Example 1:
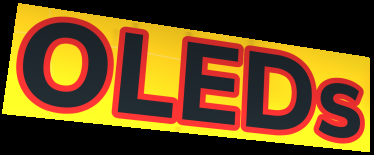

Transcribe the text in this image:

OLEDs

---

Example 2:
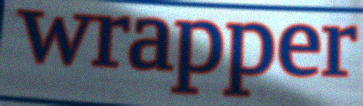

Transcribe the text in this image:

wrapper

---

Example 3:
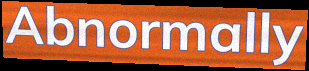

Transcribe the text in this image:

Abnormally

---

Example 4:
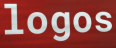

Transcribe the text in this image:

logos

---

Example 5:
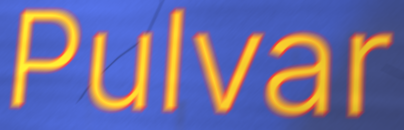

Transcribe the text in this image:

Pulvar